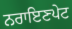
ਨਰਾਇਣਪੇਟ